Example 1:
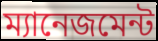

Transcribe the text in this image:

ম্যানেজমেন্ট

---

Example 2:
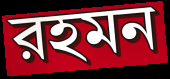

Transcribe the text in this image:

রহমন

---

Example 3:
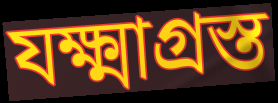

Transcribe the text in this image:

যক্ষ্মাগ্রস্ত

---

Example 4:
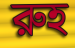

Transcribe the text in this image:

রুহ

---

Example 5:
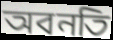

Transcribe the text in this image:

অবনতি